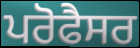
ਪਰੋਫੈਸਰ